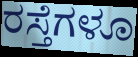
ರಸ್ತೆಗಳೂ